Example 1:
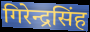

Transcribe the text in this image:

गिरेन्द्रसिंह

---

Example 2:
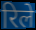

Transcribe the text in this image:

रिले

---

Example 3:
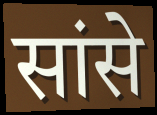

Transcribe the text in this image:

सांसे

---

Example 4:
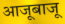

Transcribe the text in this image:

आजूबाजू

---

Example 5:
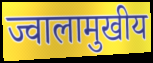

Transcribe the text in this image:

ज्वालामुखीय